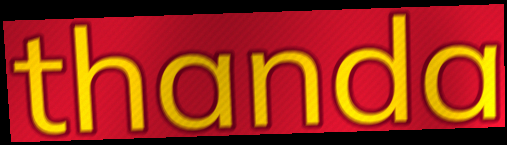
thanda